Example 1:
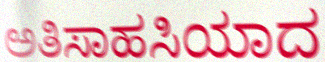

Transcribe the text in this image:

ಅತಿಸಾಹಸಿಯಾದ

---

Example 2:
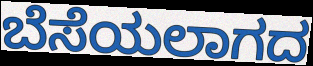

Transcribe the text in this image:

ಬೆಸೆಯಲಾಗದ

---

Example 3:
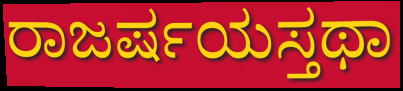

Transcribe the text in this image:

ರಾಜರ್ಷಯಸ್ತಥಾ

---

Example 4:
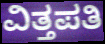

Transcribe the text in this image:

ವಿತ್ತಪತಿ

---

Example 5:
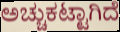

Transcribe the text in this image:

ಅಚ್ಚುಕಟ್ಟಾಗಿದೆ